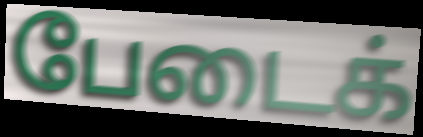
பேடைக்